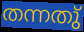
തന്നതു്